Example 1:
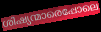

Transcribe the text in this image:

ശിഷ്യന്മാരെപ്പോലെ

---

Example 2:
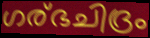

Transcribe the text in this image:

ഗര്ഭചിദ്രം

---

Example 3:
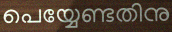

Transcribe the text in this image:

പെയ്യേണ്ടതിനു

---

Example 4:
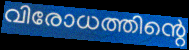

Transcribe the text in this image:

വിരോധത്തിന്റെ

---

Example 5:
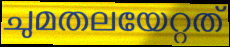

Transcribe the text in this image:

ചുമതലയേറ്റത്